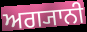
ਅਗ੍ਯਾਨੀ